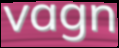
vagn